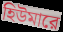
হিউমারে